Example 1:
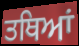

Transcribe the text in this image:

ਤਥਿਆਂ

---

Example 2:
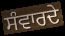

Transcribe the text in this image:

ਸੰਵਾਰਦੇ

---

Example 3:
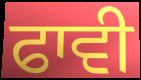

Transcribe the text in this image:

ਫਾਵੀ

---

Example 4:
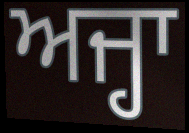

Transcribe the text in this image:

ਅਜ੍ਹਾ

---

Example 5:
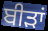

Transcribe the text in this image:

ਬੀੜਾਂ